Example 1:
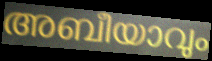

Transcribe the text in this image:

അബീയാവും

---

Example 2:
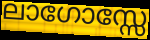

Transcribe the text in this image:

ലാഗോസ്സേ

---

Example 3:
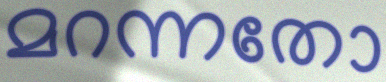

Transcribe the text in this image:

മറന്നതോ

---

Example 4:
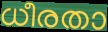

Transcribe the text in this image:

ധീരതാ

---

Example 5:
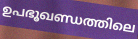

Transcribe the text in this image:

ഉപഭൂഖണ്ഡത്തിലെ